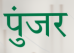
पुंजर